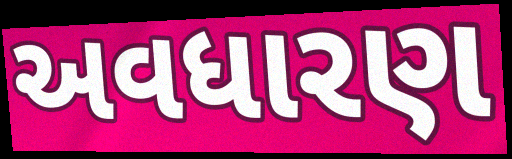
અવધારણ